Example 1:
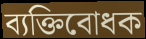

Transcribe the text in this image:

ব্যক্তিবোধক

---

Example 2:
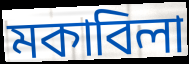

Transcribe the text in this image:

মকাবিলা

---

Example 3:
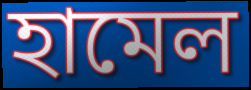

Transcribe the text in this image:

হামেল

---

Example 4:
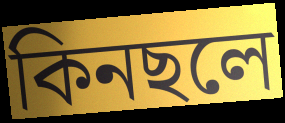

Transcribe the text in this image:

কিনছলে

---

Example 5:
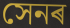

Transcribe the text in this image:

সেনৰ